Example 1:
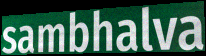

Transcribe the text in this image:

sambhalva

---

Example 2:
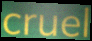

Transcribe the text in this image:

cruel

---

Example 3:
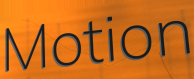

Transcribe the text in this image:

Motion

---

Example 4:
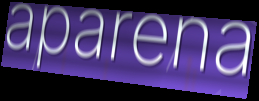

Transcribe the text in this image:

aparena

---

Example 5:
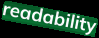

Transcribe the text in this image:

readability